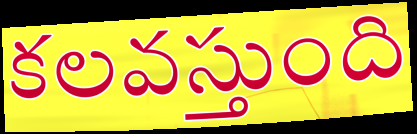
కలవస్తుంది